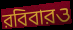
রবিবারও